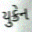
યુક્રેન